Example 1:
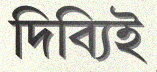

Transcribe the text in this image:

দিব্যিই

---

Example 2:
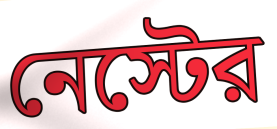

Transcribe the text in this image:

নেস্টের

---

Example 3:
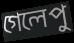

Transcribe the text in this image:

গেলেপু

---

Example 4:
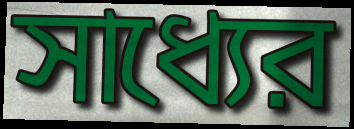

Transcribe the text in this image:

সাধ্যের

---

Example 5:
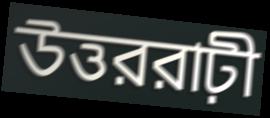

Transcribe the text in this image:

উত্তররাঢ়ী